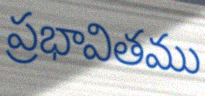
ప్రభావితము